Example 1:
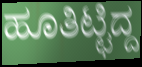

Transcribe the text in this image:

ಹೂತಿಟ್ಟಿದ್ದ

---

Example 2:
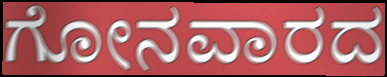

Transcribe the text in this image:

ಗೋನವಾರದ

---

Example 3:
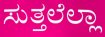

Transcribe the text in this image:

ಸುತ್ತಲೆಲ್ಲಾ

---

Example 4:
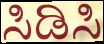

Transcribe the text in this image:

ಸಿಡಿಸಿ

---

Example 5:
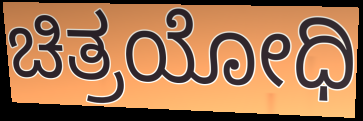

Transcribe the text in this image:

ಚಿತ್ರಯೋಧಿ